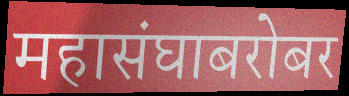
महासंघाबरोबर